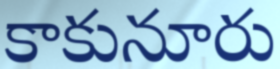
కాకునూరు